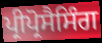
ਪ੍ਰੀਪ੍ਰੋਸੈਸਿੰਗ